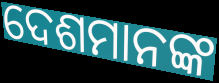
ଦେଶମାନଙ୍କ